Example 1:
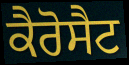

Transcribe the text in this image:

ਕੈਰੋਸੈਟ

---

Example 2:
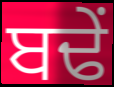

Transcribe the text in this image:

ਬਢੇਂ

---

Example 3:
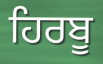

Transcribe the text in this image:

ਹਿਰਬੂ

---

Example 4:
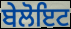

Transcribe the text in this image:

ਬੇਲੋਇਟ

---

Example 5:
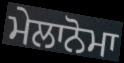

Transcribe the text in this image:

ਮੇਲਾਨੋਮਾ